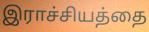
இராச்சியத்தை